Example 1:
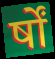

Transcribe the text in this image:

र्षों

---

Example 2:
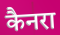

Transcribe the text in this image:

कैनरा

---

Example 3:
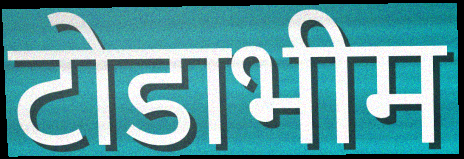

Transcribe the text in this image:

टोडाभीम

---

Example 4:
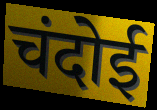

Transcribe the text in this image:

चंदोई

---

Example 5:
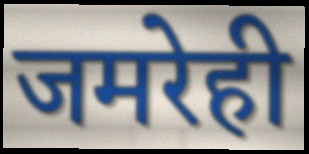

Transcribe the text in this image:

जमरेही